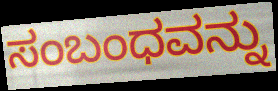
ಸಂಬಂಧವನ್ನು